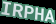
IRPHA